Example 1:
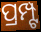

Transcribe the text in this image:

ପ୍ରମ୍ପ୍ଟ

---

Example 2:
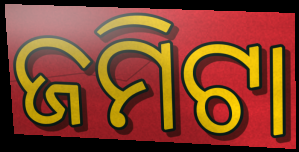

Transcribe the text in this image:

ଜମିଟା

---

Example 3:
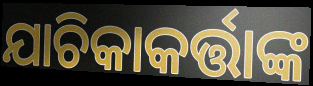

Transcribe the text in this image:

ଯାଚିକାକର୍ତ୍ତାଙ୍କ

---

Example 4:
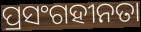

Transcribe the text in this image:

ପ୍ରସଂଗହୀନତା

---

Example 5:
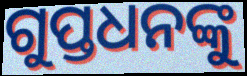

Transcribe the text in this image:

ଗୁପ୍ତଧନଙ୍କୁ